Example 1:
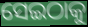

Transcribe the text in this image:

ସେଇଠାକୁ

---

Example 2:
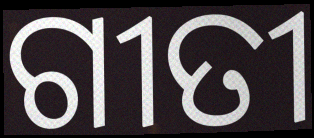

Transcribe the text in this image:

ଗୀତୀ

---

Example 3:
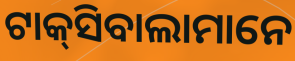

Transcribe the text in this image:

ଟାକ୍‌ସିବାଲାମାନେ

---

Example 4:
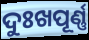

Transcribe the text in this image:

ଦୁଃଖପୂର୍ଣ୍ଣ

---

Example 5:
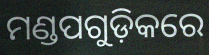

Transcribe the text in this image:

ମଣ୍ଡପଗୁଡ଼ିକରେ